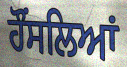
ਹੌਂਸਲਿਆਂ